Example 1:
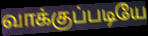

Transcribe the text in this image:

வாக்குப்படியே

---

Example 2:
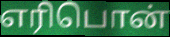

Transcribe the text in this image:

எரிபொன்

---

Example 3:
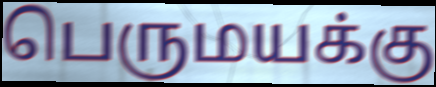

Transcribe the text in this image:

பெருமயக்கு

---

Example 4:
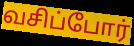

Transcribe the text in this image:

வசிப்போர்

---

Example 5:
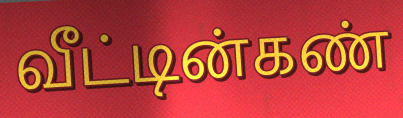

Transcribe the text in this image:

வீட்டின்கண்